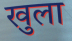
खुला